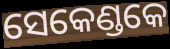
ସେକେଣ୍ଡକେ